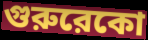
গুরুরেকো